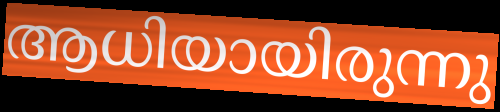
ആധിയായിരുന്നു